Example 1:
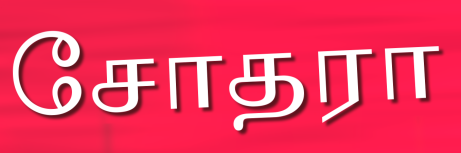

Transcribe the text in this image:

சோதரா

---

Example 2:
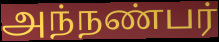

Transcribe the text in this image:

அந்நண்பர்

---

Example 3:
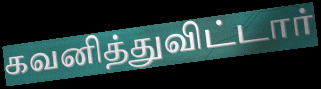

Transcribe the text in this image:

கவனித்துவிட்டார்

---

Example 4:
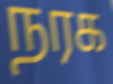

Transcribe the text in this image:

நரக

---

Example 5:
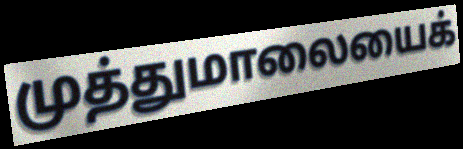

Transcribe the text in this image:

முத்துமாலையைக்